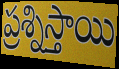
ప్రశ్నిస్తాయి